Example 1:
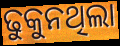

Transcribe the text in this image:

ଢୁକୁନଥିଲା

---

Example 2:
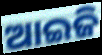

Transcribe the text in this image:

ଆଇଜି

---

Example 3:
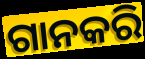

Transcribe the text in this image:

ଗାନକରି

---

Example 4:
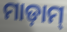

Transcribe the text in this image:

ମାଡ଼ାମ୍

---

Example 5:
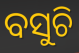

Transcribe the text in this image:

ବସୁଚି